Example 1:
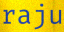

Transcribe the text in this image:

raju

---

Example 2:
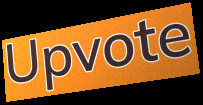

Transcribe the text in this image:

Upvote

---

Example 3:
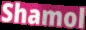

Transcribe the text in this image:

Shamol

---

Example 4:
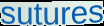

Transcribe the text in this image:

sutures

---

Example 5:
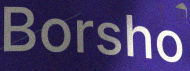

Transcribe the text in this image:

Borsho